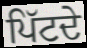
ਪਿੱਟਦੇ